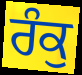
ਰੰਕੁ